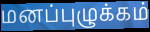
மனப்புழுக்கம்